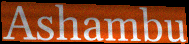
Ashambu